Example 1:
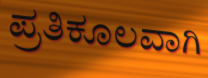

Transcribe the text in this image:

ಪ್ರತಿಕೂಲವಾಗಿ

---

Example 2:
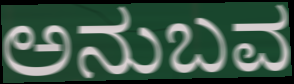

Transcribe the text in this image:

ಅನುಬವ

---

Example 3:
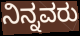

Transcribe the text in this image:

ನಿನ್ನವರು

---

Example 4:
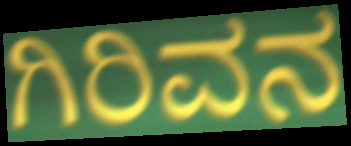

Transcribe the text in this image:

ಗಿರಿವನ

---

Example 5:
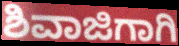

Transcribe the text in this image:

ಶಿವಾಜಿಗಾಗಿ